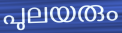
പുലയരും